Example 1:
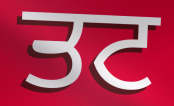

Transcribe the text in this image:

ਤਟ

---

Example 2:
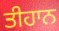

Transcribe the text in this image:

ਤੀਹਾਨ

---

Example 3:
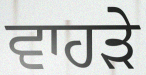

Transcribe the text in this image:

ਵਾਹੜੇ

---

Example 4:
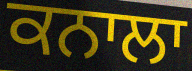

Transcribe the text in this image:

ਕਨਾਲਾ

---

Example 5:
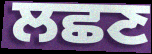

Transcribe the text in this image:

ਲਛਣ